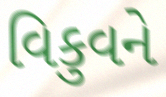
વિકુવને